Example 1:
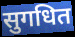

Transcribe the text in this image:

सुगधित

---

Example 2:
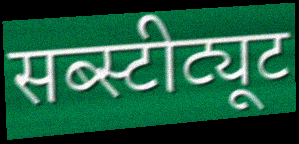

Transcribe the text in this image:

सब्स्टीट्यूट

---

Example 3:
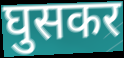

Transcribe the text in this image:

घुसकर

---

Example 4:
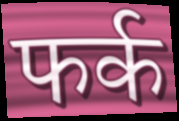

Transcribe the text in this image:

फर्क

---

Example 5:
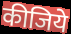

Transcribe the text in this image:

कीजिये